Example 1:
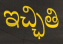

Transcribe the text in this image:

ఇచ్ఛితి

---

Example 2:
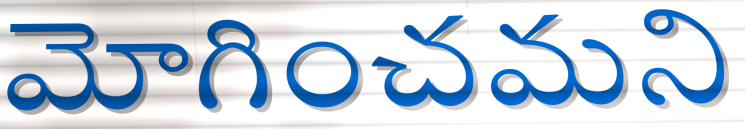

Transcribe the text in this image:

మోగించమని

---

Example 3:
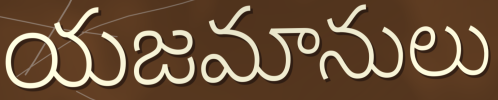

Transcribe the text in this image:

యజమానులు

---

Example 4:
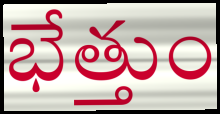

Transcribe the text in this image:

భేత్తుం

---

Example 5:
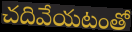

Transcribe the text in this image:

చదివేయటంతో